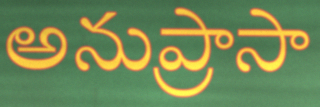
అనుప్రాసా